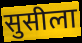
सुसीला